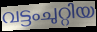
വട്ടംചുറ്റിയ